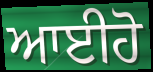
ਆਈਹੋ